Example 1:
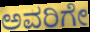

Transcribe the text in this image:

ಅವರಿಗೇ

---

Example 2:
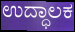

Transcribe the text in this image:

ಉದ್ಧಾಲಕ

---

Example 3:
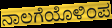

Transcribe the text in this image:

ನಾಲಗೆಯೊಳಿಂಪ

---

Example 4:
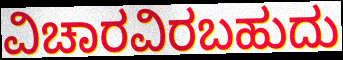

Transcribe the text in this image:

ವಿಚಾರವಿರಬಹುದು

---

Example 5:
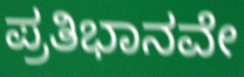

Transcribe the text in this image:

ಪ್ರತಿಭಾನವೇ